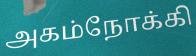
அகம்நோக்கி